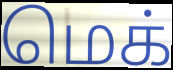
மெக்